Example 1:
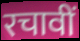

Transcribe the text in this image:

रचावीं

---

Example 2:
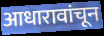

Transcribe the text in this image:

आधारावांचून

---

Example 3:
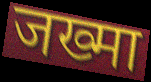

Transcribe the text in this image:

जख्मा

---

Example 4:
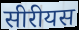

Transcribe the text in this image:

सीरीयस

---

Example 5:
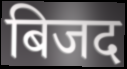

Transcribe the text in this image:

बिजद